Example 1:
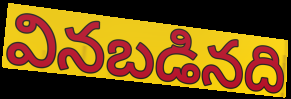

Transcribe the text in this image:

వినబడినది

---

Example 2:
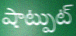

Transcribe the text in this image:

షాట్పుట్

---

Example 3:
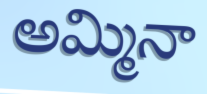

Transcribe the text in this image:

అమ్మినా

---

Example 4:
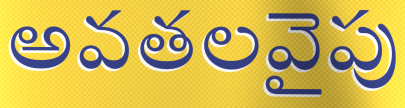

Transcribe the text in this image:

అవతలవైపు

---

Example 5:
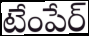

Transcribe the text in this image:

టేంపేర్